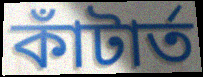
কাঁটার্ত